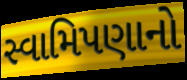
સ્વામિપણાનો